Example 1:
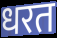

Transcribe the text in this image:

धरत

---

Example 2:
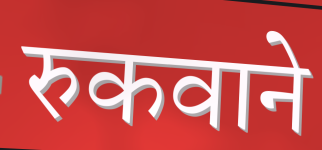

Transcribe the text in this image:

रुकवाने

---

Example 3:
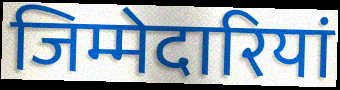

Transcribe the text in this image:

जिम्मेदारियां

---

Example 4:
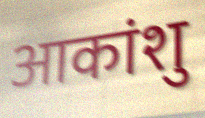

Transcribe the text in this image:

आकांशु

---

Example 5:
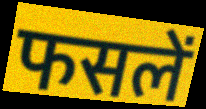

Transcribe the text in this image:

फसलें